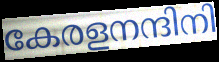
കേരളനന്ദിനി